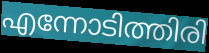
എന്നോടിത്തിരി